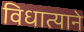
विधात्याने